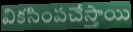
వికసింపచేస్తాయి